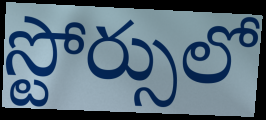
స్టోర్సులో